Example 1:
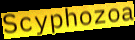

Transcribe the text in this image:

Scyphozoa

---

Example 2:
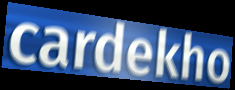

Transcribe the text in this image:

cardekho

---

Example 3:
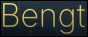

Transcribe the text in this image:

Bengt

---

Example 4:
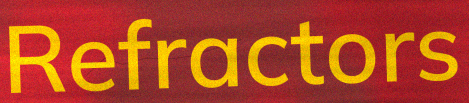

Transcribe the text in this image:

Refractors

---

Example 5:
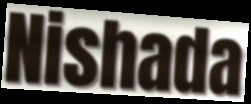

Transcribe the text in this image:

Nishada